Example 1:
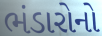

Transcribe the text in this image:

ભંડારોનો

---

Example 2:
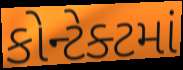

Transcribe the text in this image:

કોન્ટેક્ટમાં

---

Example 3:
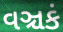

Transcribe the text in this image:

વઞ્ચકં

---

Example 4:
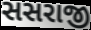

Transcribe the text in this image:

સસરાજી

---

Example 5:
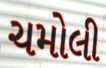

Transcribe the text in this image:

ચમોલી